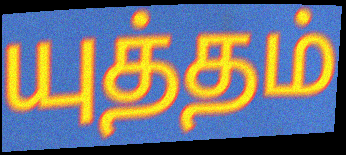
யுத்தம்